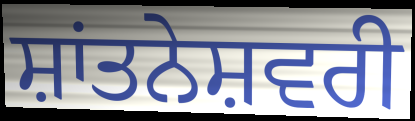
ਸ਼ਾਂਤਨੇਸ਼ਵਰੀ